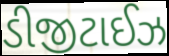
ડીજીટાઈઝ